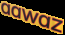
aawaz